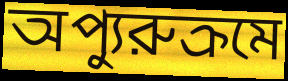
অপ্যুরুক্রমে